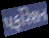
પર્ફોરેશન